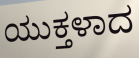
ಯುಕ್ತಳಾದ